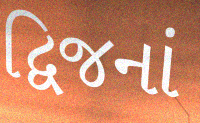
દ્વિજનાં